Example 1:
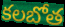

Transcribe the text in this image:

కలబోత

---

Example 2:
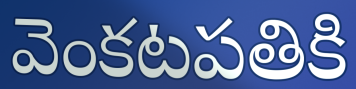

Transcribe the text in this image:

వెంకటపతికి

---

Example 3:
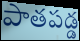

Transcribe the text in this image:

పాతపడ్డ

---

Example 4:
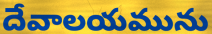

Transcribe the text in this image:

దేవాలయమును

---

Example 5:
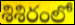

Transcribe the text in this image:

శిశిరంలో